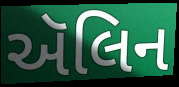
ઍલિન